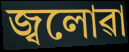
জ্বলোৱা